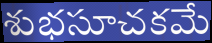
శుభసూచకమే